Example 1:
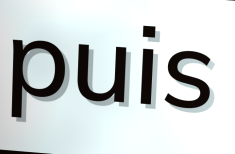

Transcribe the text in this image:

puis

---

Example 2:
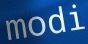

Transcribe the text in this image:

modi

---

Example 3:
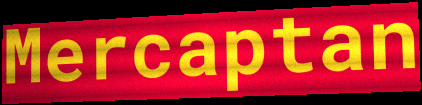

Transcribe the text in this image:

Mercaptan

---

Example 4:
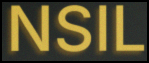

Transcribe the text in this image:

NSIL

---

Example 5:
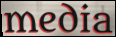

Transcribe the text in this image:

media